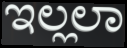
ಇಲ್ಲಲಾ